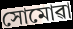
সোমোৱা